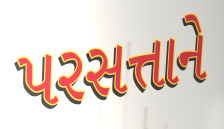
પરસત્તાને